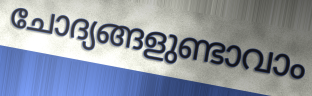
ചോദ്യങ്ങളുണ്ടാവാം